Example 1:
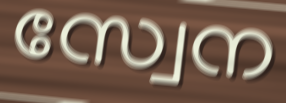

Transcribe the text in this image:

സ്വേന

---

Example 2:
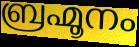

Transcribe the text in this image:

ബ്രഹ്മൂനം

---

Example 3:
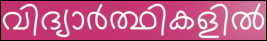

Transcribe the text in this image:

വിദ്യാർത്ഥികളിൽ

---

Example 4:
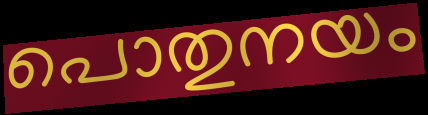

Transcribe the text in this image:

പൊതുനയം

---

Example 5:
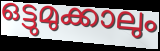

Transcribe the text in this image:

ഒട്ടുമുക്കാലും